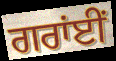
ਗਰਾਂਈਂ